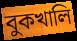
বুকখালি